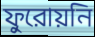
ফুরোয়নি